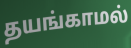
தயங்காமல்